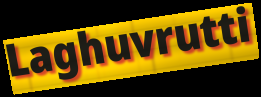
Laghuvrutti